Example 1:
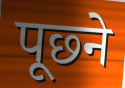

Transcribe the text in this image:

पूछ्ने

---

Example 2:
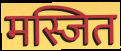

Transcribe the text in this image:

मस्जित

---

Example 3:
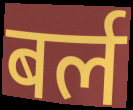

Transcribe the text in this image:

बर्ल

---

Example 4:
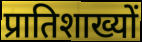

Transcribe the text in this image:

प्रातिशाख्यों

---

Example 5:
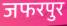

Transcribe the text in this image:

जफरपुर